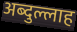
अब्दुल्लाह